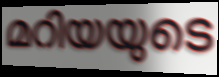
മറിയയുടെ